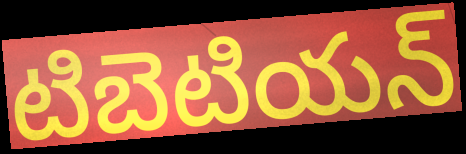
టిబెటియన్